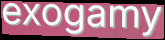
exogamy